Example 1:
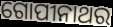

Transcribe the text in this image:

ଗୋପୀନାଥର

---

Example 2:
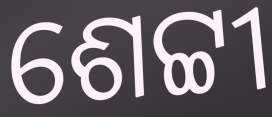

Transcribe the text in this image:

ଶେଟ୍ଟୀ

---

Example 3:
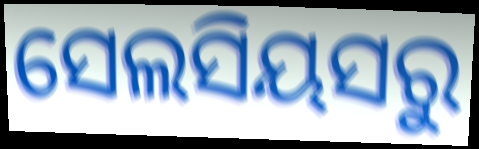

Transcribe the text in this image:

ସେଲସିୟସରୁ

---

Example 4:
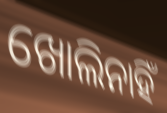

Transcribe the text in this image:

ଖୋଲିନାହିଁ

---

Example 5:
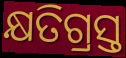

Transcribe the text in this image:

କ୍ଷତିଗ୍ରସ୍ତ